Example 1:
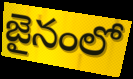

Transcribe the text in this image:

జైనంలో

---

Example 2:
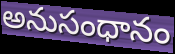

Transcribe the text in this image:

అనుసంధానం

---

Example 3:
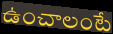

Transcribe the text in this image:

ఉంచాలంటే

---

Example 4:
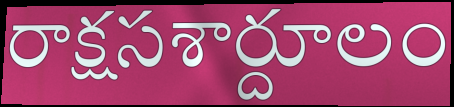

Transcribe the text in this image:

రాక్షసశార్దూలం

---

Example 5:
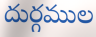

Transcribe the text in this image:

దుర్గముల